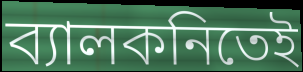
ব্যালকনিতেই